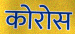
कोरोस